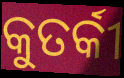
କୁତର୍କୀ